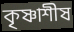
কৃষ্ণাশীষ